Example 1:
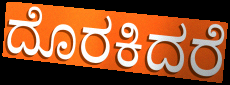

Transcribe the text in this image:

ದೊರಕಿದರೆ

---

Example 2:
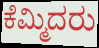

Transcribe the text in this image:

ಕೆಮ್ಮಿದರು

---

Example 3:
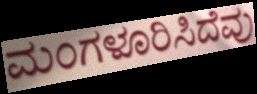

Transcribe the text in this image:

ಮಂಗಳೂರಿಸಿದೆವು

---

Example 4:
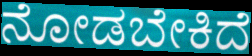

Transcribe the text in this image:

ನೋಡಬೇಕಿದೆ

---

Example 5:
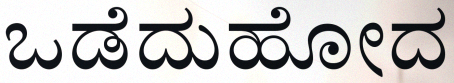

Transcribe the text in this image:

ಒಡೆದುಹೋದ